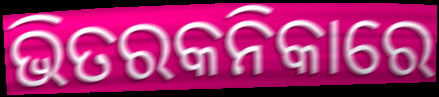
ଭିତରକନିକାରେ